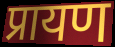
प्रायण